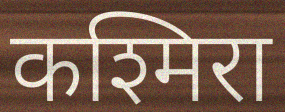
कश्मिरा